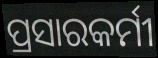
ପ୍ରସାରକର୍ମୀ